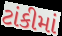
ટાંકીમાં